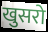
खुसरो